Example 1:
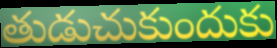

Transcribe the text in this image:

తుడుచుకుందుకు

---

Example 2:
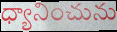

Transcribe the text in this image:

ధ్యానించును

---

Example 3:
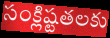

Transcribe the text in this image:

సంక్లిష్టతలకు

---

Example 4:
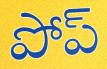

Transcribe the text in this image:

పోప్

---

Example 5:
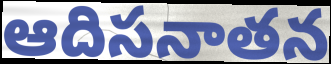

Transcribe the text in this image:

ఆదిసనాతన